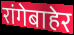
रांगेबाहेर